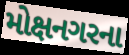
મોક્ષનગરના